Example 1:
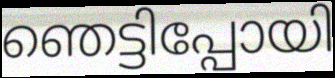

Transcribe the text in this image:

ഞെട്ടിപ്പോയി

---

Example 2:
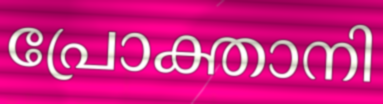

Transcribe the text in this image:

പ്രോക്താനി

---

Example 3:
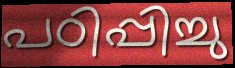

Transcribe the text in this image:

പഠിപ്പിച്ചു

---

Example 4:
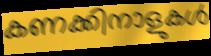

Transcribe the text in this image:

കണക്കിനാളുകൾ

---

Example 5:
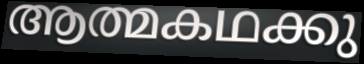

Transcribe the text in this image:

ആത്മകഥക്കു